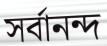
সৰ্বানন্দ